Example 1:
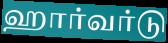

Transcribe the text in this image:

ஹார்வர்டு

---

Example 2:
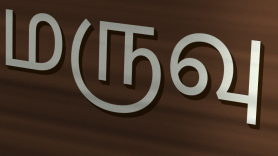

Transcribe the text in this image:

மருவு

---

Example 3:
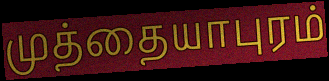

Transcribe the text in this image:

முத்தையாபுரம்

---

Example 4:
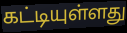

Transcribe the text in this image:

கட்டியுள்ளது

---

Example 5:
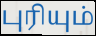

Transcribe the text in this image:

புரியும்